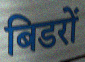
बिडरों